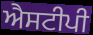
ਐਸਟੀਪੀ